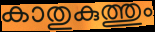
കാതുകുത്തും